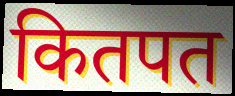
कितपत